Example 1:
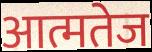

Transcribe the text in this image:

आत्मतेज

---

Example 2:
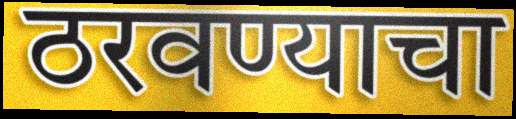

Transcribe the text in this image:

ठरवण्याचा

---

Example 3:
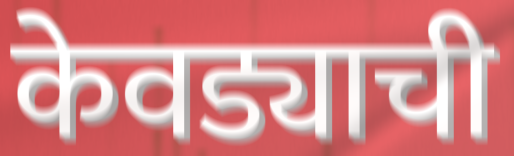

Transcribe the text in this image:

केवड्याची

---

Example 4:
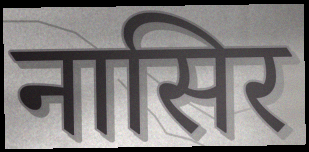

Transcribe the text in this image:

नासिर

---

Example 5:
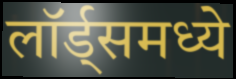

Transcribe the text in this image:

लॉर्ड्समध्ये